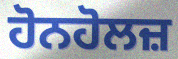
ਹੋਨਹੋਲਜ਼